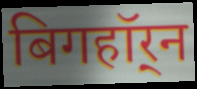
बिगहॉर्न